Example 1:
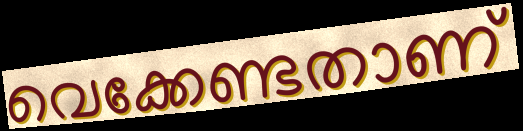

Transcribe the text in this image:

വെക്കേണ്ടതാണ്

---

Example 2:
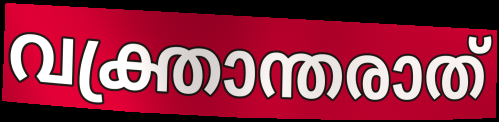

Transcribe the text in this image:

വക്ത്രാന്തരാത്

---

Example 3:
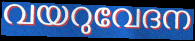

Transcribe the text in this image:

വയറുവേദന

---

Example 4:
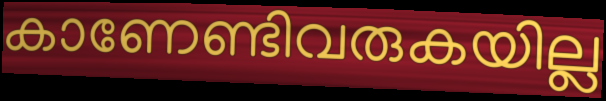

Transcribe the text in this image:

കാണേണ്ടിവരുകയില്ല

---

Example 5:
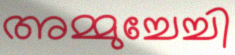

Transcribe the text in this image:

അമ്മുച്ചേച്ചി